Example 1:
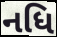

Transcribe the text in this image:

નધિ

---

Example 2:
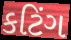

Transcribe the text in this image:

કટિંગ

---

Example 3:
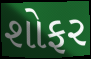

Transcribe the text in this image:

શોફર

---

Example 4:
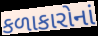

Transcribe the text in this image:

કળાકારોનાં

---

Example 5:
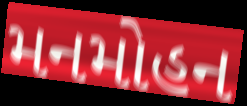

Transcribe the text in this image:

મનમોહન